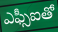
ఎఫ్సీఐతో